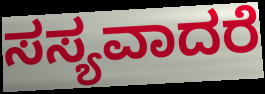
ಸಸ್ಯವಾದರೆ